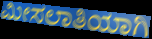
ಮೀಸಲಾತಿಯಾಗಿ